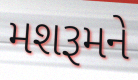
મશરૂમને